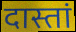
दास्तां